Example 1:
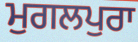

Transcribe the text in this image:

ਮੁਗਲਪੁਰਾ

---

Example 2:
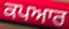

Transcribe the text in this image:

ਕਪਆਰ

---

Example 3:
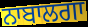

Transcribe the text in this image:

ਨਾਬਾਲਗਾ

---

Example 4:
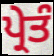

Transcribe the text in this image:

ਪ੍ਰੇਤੰ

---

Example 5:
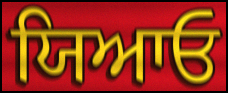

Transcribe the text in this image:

ਯਿਆਓ